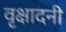
वृक्षादनी